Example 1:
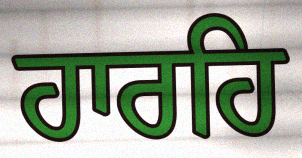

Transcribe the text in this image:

ਹਾਰਹਿ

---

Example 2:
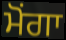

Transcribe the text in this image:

ਮੋਂਗਾ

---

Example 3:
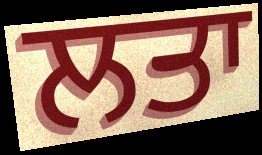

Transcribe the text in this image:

ਲਤਾ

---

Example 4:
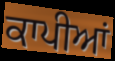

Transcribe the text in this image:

ਕਾਪੀਆਂ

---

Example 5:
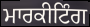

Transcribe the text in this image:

ਮਾਰਕੀਟਿੰਗ